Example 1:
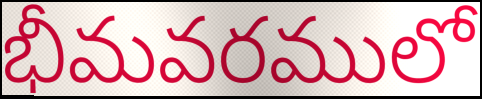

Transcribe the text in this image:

భీమవరములో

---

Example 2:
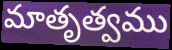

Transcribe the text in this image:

మాతృత్వము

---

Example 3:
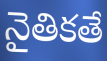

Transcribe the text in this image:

నైతికతే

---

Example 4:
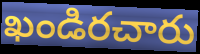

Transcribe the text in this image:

ఖండిరచారు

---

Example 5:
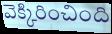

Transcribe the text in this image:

వెక్కిరించింది